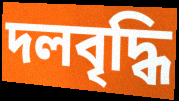
দলবৃদ্ধি